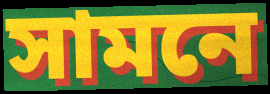
সামনে